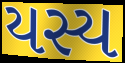
યસ્ય